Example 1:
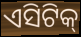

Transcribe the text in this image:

ଏସିଟିକ୍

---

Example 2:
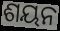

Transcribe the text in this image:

ଶୟନ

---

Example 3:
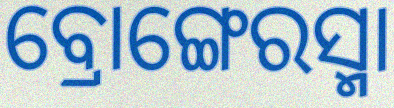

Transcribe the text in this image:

ବ୍ରୋଙ୍ଗେରସ୍ମା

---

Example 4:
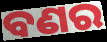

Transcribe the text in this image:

ବଣର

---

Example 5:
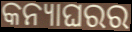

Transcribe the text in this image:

କନ୍ୟାଘରର